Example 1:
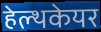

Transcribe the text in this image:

हेल्थकेयर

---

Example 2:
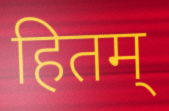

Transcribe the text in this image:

हितम्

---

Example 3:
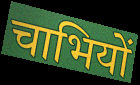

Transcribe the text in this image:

चाभियों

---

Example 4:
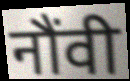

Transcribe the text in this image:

नौंवी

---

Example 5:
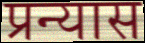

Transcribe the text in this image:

प्रन्यास